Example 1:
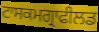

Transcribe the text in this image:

ਟਾਸਕਮਗ੍ਰਾਫੀਲਡ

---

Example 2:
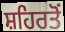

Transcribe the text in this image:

ਸ਼ਹਿਰਤੋਂ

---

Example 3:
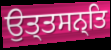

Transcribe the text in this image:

ਉਤ੍ਤਸਨ੍ਤਿ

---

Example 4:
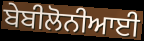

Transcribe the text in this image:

ਬੇਬੀਲੋਨੀਆਈ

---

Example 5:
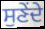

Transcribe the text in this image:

ਸੁਣੇਂਦੇ